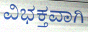
ವಿಭಕ್ತವಾಗಿ